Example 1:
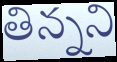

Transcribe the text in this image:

తిన్నని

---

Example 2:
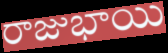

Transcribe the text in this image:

రాజుభాయి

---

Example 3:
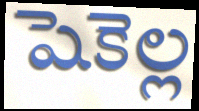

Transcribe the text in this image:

షెకెల్ల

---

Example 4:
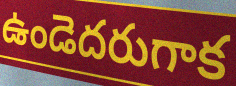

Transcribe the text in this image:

ఉండెదరుగాక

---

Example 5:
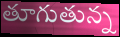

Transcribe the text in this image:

తూగుతున్న